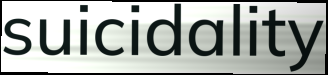
suicidality